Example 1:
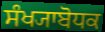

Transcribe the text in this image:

ਸੰਖ੍ਯਾਬੋਧਕ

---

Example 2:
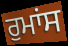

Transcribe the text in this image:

ਰੁਮਾਂਸ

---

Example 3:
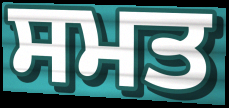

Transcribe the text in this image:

ਸਮਤ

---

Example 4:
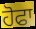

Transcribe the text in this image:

ਹੋਫਾ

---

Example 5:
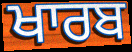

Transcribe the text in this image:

ਖਾਰਬ